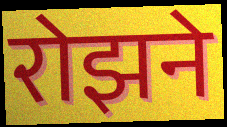
रोझने